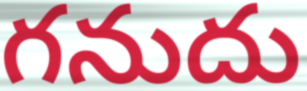
గనుదు